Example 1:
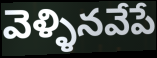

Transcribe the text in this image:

వెళ్ళినవేపే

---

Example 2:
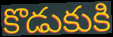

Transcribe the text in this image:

కొడుకుకి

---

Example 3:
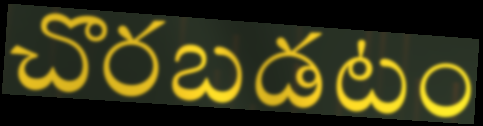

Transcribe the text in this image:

చొరబడటం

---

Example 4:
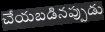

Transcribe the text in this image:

చేయబడినప్పుడు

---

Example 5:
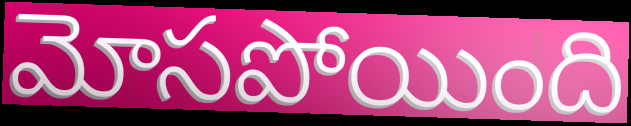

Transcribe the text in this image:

మోసపోయింది